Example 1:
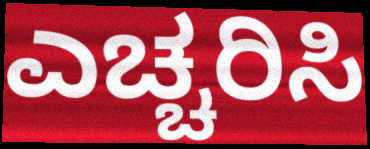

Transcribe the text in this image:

ಎಚ್ಚರಿಸಿ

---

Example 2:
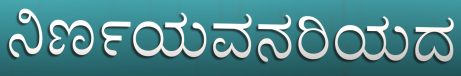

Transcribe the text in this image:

ನಿರ್ಣಯವನರಿಯದ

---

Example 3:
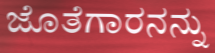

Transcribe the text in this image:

ಜೊತೆಗಾರನನ್ನು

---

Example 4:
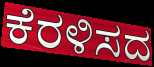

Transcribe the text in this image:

ಕೆರಳಿಸದ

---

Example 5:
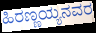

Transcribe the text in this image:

ಹಿರಣ್ಣಯ್ಯನವರ